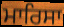
ਮਾਰਿਸਾ